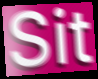
Sit